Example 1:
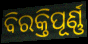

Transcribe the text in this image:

ବିରକ୍ତିପୂର୍ଣ୍ଣ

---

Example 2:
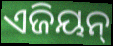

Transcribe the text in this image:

ଏଜିୟନ୍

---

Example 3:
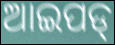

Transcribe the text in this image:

ଆଇପଡ୍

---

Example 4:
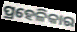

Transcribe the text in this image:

ପ୍ରହେଳିକାର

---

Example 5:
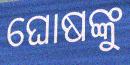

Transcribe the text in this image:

ଘୋଷଙ୍କୁ